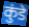
कुंडे